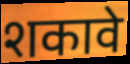
शकावे